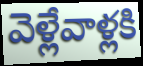
వెళ్లేవాళ్లకి